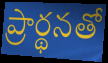
ప్రార్థనతో